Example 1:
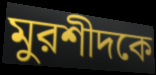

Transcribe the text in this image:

মুরশীদকে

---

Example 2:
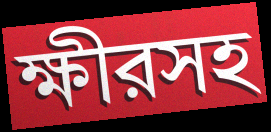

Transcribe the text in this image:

ক্ষীরসহ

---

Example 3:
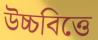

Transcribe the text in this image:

উচ্চবিত্তে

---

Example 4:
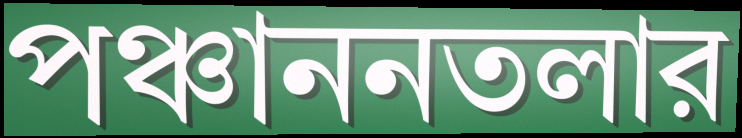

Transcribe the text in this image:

পঞ্চাননতলার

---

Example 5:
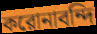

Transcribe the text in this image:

করোনাবন্দি